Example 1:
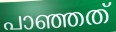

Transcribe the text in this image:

പാഞ്ഞത്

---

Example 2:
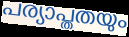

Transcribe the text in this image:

പര്യാപ്തതയും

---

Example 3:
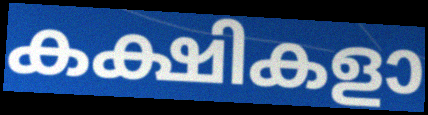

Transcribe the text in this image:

കക്ഷികളാ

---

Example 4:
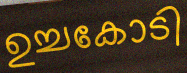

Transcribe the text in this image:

ഉച്ചകോടി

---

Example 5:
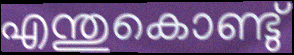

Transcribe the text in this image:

എന്തുകൊണ്ടു്